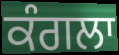
ਕੰਗਲਾ